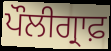
ਪੌਲੀਗ੍ਰਾਫ਼